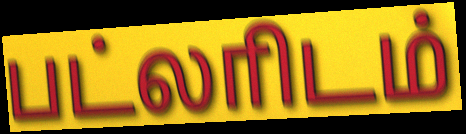
பட்லரிடம்